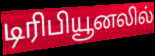
டிரிபியூனலில்